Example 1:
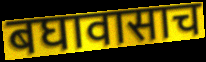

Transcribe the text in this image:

बघावासाच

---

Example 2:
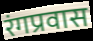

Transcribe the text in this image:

रंगप्रवास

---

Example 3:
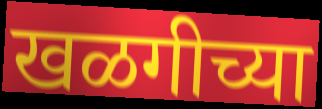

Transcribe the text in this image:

खळगीच्या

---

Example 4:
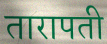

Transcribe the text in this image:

तारापती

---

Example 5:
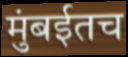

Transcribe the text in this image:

मुंबईतच